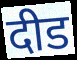
दीड